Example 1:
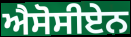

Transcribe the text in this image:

ਐਸੋਸੀਏਨ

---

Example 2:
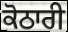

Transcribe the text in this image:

ਕੋਠਾਰੀ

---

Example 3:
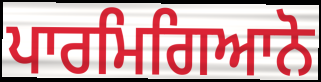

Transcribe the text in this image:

ਪਾਰਮਿਗਿਆਨੋ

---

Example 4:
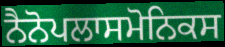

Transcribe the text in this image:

ਨੈਨੋਪਲਾਸਮੋਨਿਕਸ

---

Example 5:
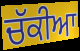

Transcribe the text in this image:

ਚੱਕੀਆ